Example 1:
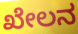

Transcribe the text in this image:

ಖೇಲನ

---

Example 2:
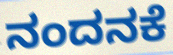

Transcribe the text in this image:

ನಂದನಕೆ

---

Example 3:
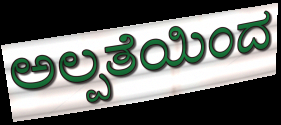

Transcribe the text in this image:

ಅಲ್ಪತೆಯಿಂದ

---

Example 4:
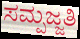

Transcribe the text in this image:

ಸಮ್ಪಜ್ಜತಿ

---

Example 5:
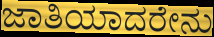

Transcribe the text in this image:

ಜಾತಿಯಾದರೇನು